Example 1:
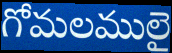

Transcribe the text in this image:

గోమలములై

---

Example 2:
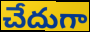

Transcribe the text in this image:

చేదుగా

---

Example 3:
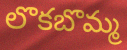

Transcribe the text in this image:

లొకబొమ్మ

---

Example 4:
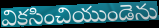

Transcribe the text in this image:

వికసించియుండెను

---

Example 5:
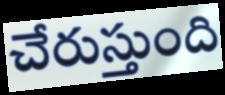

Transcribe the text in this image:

చేరుస్తుంది